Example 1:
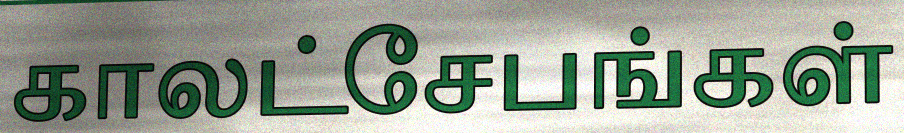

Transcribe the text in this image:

காலட்சேபங்கள்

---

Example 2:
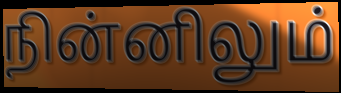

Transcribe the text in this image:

நின்னிலும்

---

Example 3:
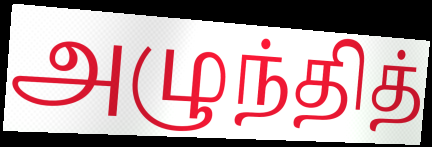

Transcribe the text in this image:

அழுந்தித்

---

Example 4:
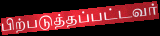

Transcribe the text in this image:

பிற்படுத்தப்பட்டவர்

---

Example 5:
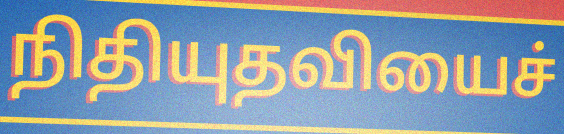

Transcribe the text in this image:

நிதியுதவியைச்